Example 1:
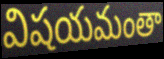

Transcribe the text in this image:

విషయమంతా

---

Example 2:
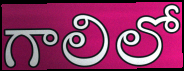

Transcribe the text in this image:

గాలిలో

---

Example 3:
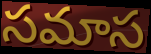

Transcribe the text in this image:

సమాస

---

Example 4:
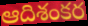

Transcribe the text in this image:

ఆదిశంకర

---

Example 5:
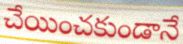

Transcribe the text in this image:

చేయించకుండానే